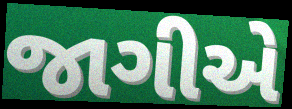
જાગીએ